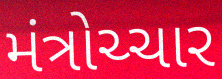
મંત્રોચ્ચાર